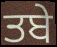
ਤਬੇ